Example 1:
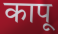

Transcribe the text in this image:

कापू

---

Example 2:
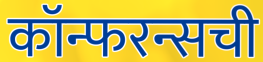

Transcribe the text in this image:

कॉन्फरन्सची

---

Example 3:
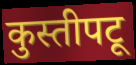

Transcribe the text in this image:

कुस्तीपटू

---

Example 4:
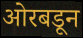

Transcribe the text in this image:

ओरबडून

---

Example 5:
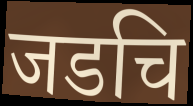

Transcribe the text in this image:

जडचि